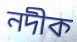
নদীক